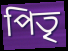
পিতৃ